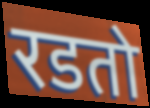
रडतो